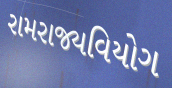
રામરાજ્યવિયોગ